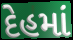
દેહમાં